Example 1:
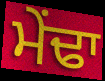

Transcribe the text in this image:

ਮੇਂਢਾ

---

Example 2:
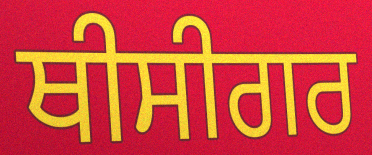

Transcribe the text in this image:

ਥੀਸੀਗਰ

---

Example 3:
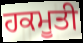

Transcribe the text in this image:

ਹਕਮੂਤੀ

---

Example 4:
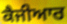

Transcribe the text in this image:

ਕੈਜੀਆਰ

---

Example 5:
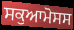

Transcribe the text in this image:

ਸਕੁਆਮੋਸਸ